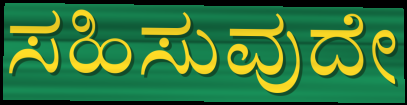
ಸಹಿಸುವುದೇ